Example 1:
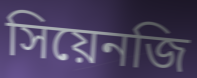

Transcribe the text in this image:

সিয়েনজি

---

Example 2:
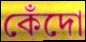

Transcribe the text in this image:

কেঁদো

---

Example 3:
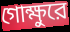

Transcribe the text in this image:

গোক্ষুরে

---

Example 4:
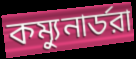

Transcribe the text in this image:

কম্যুনার্ডরা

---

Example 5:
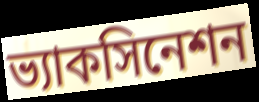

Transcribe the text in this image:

ভ্যাকসিনেশন